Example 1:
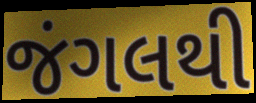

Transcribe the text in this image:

જંગલથી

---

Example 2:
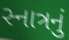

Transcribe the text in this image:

સ્નાત્રનું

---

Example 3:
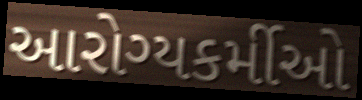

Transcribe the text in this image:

આરોગ્યકર્મીઓ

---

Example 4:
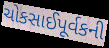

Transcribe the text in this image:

ચોકસાઈપૂર્વકની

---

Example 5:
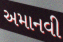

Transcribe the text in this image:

અમાનવી